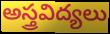
అస్త్రవిద్యలు